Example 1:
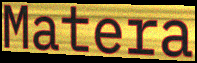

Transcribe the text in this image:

Matera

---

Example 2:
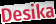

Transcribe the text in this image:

Desika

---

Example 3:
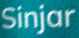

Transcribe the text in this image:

Sinjar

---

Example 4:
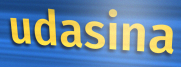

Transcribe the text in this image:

udasina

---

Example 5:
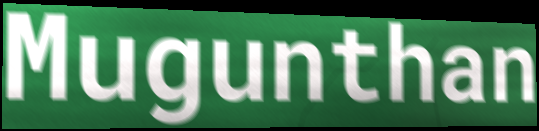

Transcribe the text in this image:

Mugunthan